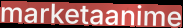
marketaanime